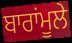
ਬਾਰਾਂਮੂਲੇ